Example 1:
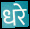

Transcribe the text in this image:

धरे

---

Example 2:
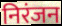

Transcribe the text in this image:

निरंजन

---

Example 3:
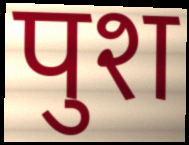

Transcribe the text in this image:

पुश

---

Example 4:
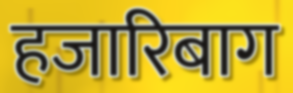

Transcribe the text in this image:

हजारिबाग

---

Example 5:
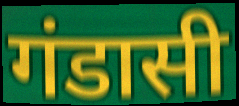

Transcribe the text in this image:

गंडासी